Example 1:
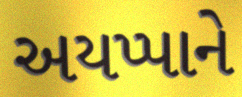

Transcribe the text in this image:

અયપ્પાને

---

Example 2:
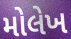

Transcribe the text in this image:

મોલેખ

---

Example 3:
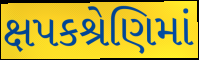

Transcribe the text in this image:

ક્ષપકશ્રેણિમાં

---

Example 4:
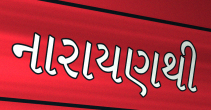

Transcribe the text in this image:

નારાયણથી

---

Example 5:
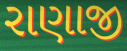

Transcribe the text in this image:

રાણાજી